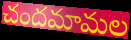
చందమామల